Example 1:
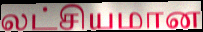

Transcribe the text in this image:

லட்சியமான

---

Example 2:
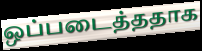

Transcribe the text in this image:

ஒப்படைத்ததாக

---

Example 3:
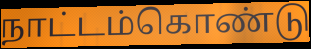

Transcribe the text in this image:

நாட்டம்கொண்டு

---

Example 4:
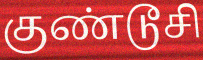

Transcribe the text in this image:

குண்டூசி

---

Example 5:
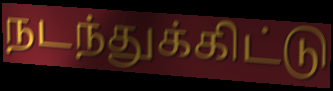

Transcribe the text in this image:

நடந்துக்கிட்டு